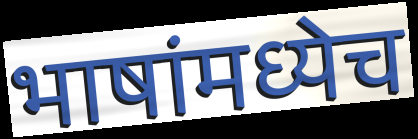
भाषांमध्येच